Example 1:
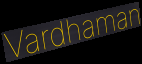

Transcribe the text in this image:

Vardhaman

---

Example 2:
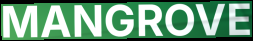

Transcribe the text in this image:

MANGROVE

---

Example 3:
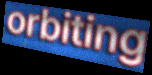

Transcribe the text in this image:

orbiting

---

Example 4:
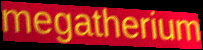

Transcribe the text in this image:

megatherium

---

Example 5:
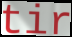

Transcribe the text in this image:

tir